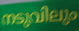
നടുവിലും